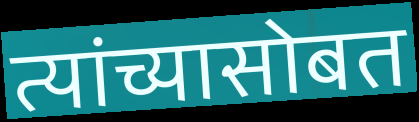
त्यांच्यासोबत